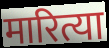
मारित्या